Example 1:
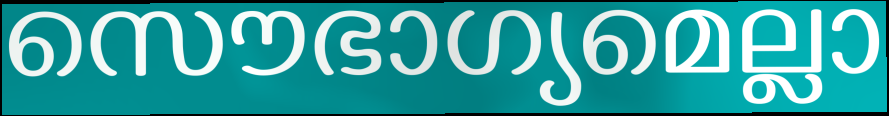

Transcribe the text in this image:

സൌഭാഗ്യമെല്ലാ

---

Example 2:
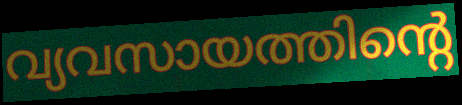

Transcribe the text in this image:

വ്യവസായത്തിന്റെ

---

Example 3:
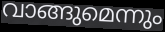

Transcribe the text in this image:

വാങ്ങുമെന്നും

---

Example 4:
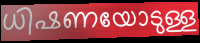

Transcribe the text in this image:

ധിഷണയോടുള്ള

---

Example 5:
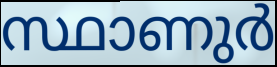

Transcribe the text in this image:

സ്ഥാണുർ